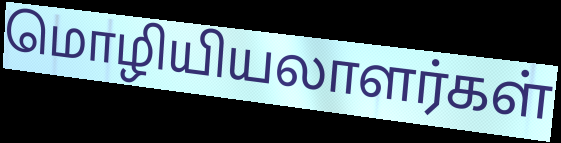
மொழியியலாளர்கள்